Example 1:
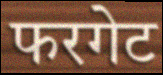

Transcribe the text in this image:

फरगेट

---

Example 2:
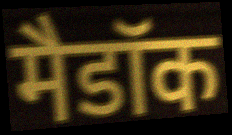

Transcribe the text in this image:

मैडॉक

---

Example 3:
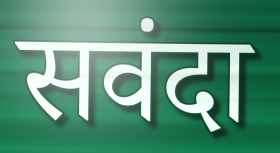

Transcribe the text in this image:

सवंदा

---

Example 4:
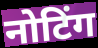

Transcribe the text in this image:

नोटिंग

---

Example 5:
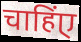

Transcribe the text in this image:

चाहिंए